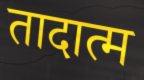
तादात्म